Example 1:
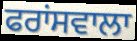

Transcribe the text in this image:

ਫਰਾਂਸਵਾਲਾ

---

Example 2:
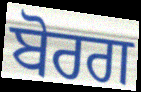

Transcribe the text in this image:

ਬੋਰਗ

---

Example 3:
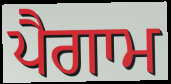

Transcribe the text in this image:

ਪੈਗਾਮ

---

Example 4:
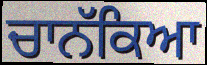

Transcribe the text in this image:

ਚਾਨੱਕਿਆ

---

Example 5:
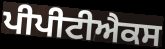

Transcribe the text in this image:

ਪੀਪੀਟੀਐਕਸ